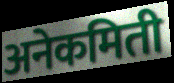
अनेकमिती